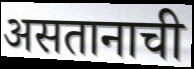
असतानाची